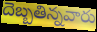
దెబ్బతిన్నవారు